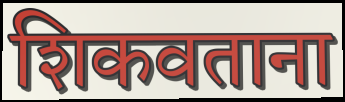
शिकवताना